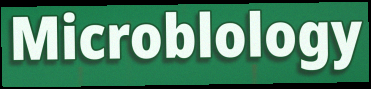
Microblology